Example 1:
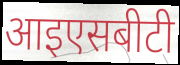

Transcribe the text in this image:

आइएसबीटी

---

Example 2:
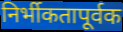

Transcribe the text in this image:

निर्भीकतापूर्वक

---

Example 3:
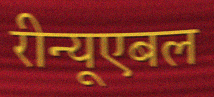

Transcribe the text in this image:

रीन्यूएबल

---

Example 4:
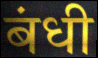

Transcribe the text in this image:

बंधी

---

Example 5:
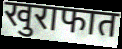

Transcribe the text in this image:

खुराफात